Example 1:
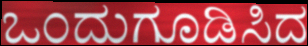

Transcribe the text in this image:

ಒಂದುಗೂಡಿಸಿದ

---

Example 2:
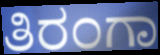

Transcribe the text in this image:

ತಿರಂಗಾ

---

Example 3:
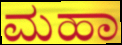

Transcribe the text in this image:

ಮಹಾ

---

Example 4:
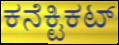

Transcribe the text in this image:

ಕನೆಕ್ಟಿಕಟ್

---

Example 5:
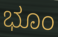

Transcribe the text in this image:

ಭೂಂ